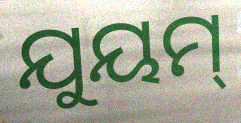
ଯୁୟମ୍